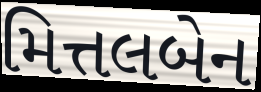
મિત્તલબેન